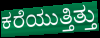
ಕರೆಯುತ್ತಿತ್ತು